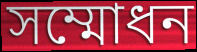
সম্মোধন